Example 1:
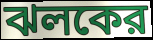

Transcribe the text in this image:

ঝলকের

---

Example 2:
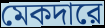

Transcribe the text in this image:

মেকদারে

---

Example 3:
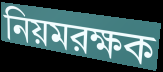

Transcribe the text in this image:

নিয়মরক্ষক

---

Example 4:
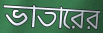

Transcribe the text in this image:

ভাতারের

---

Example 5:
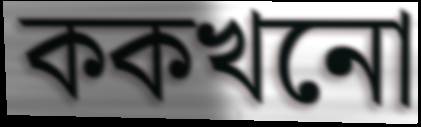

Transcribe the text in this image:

ককখনো